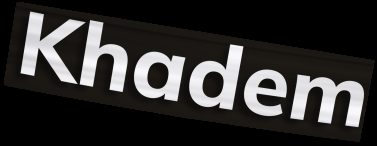
Khadem